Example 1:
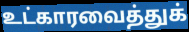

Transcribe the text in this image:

உட்காரவைத்துக்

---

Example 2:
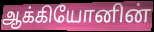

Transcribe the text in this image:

ஆக்கியோனின்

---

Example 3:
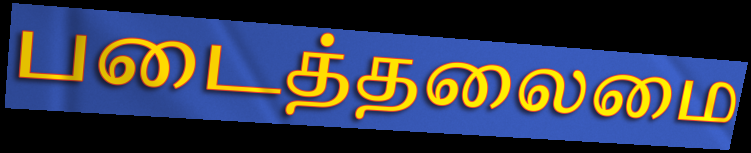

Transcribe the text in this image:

படைத்தலைமை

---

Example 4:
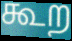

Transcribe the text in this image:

கூற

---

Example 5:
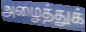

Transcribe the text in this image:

அழைத்துக்